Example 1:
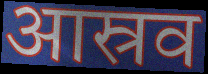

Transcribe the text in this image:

आस्रव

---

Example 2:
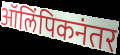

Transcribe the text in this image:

ऑलिंपिकनंतर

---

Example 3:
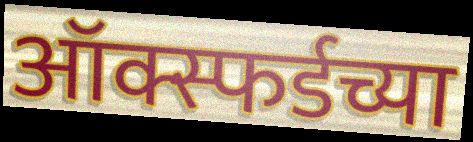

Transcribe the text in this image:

ऑक्स्फर्डच्या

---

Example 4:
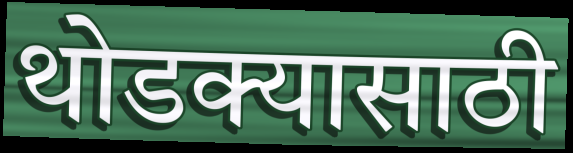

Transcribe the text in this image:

थोडक्यासाठी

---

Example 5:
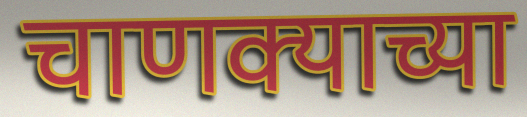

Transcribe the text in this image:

चाणक्याच्या